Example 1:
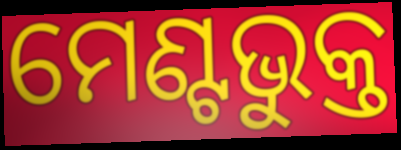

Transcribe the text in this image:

ମେଣ୍ଟଭୁକ୍ତ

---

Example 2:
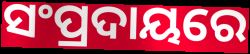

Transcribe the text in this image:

ସଂପ୍ରଦାୟରେ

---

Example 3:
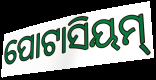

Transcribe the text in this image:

ପୋଟାସିୟମ୍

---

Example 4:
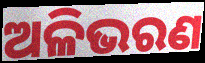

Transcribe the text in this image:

ଅଳିଭରଣ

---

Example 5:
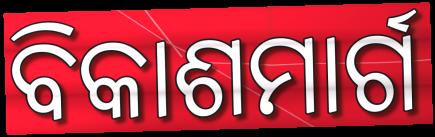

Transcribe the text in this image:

ବିକାଶମାର୍ଗ